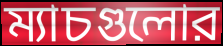
ম্যাচগুলোর